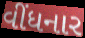
વીંધનાર